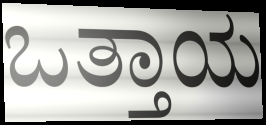
ಒತ್ತಾಯ